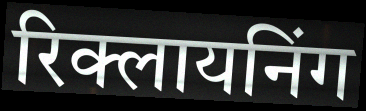
रिक्लायनिंग